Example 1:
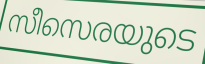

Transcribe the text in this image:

സീസെരയുടെ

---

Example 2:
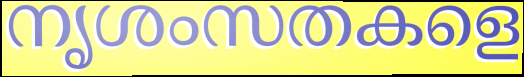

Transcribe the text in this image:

നൃശംസതകളെ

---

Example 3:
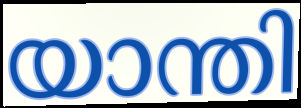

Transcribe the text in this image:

യാന്തി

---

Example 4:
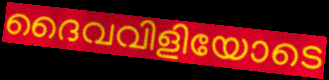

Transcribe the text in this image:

ദൈവവിളിയോടെ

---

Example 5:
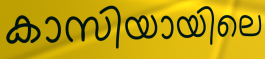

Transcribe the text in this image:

കാസിയായിലെ